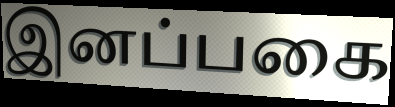
இனப்பகை